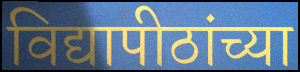
विद्यापीठांच्या